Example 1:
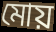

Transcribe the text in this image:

মোয়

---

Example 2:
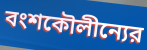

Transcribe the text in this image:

বংশকৌলীন্যের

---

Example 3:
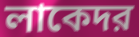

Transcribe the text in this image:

লাকেদর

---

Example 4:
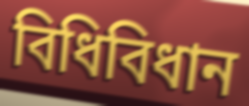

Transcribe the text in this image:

বিধিবিধান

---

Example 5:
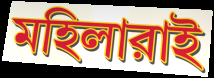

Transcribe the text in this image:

মহিলারাই